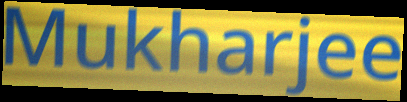
Mukharjee